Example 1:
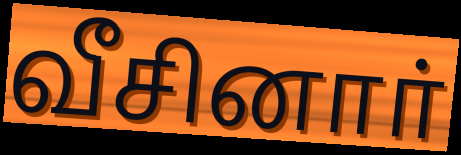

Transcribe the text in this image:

வீசினார்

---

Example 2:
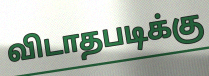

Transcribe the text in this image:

விடாதபடிக்கு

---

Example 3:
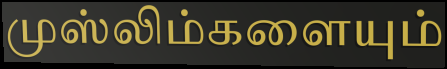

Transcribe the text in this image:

முஸ்லிம்களையும்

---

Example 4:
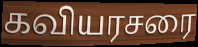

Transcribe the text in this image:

கவியரசரை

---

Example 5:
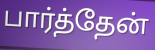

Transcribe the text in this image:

பார்த்தேன்